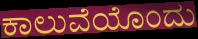
ಕಾಲುವೆಯೊಂದು